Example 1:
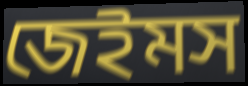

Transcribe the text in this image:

জেইমস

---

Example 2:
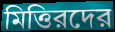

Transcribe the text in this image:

মিত্তিরদের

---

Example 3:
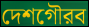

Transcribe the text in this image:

দেশগৌরব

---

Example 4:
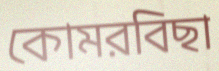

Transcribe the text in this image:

কোমরবিছা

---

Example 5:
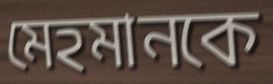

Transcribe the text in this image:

মেহমানকে